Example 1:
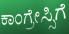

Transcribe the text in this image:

ಕಾಂಗ್ರೇಸ್ಸಿಗೆ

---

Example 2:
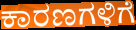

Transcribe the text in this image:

ಕಾರಣಗಳಿಗೆ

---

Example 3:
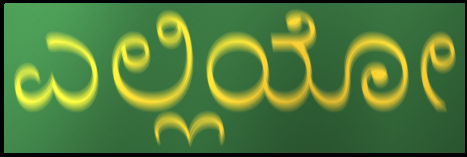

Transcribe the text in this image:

ಎಲ್ಲಿಯೋ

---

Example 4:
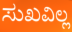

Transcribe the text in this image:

ಸುಖವಿಲ್ಲ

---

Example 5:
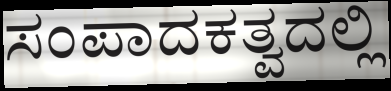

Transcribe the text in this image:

ಸಂಪಾದಕತ್ವದಲ್ಲಿ